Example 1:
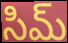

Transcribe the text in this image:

సిమ్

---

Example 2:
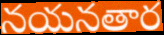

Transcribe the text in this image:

నయనతార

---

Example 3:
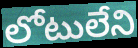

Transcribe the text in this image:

లోటులేని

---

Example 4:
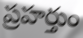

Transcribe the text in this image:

ప్రహర్తుం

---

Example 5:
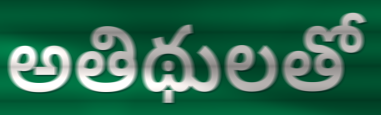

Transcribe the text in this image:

అతిథులతో